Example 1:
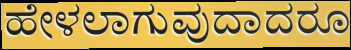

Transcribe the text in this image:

ಹೇಳಲಾಗುವುದಾದರೂ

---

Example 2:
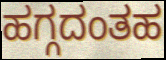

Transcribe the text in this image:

ಹಗ್ಗದಂತಹ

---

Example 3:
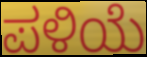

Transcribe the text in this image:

ಪಳಿಯೆ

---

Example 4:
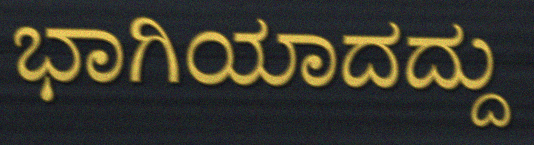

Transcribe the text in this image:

ಭಾಗಿಯಾದದ್ದು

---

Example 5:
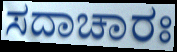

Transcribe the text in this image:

ಸದಾಚಾರಃ